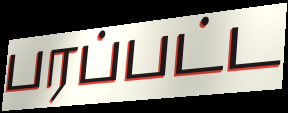
பரப்பட்ட